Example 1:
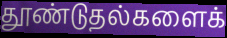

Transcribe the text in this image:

தூண்டுதல்களைக்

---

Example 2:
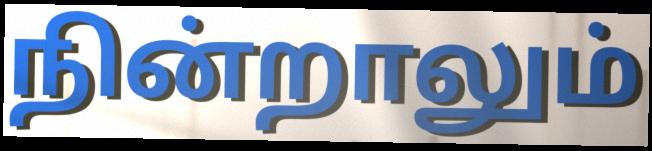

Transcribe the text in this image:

நின்றாலும்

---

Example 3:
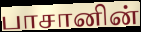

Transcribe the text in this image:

பாசானின்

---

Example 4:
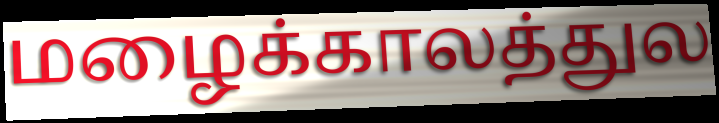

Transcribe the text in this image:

மழைக்காலத்துல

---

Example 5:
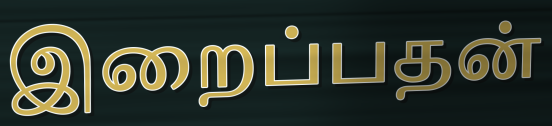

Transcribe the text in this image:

இறைப்பதன்